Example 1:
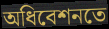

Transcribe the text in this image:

অধিবেশনতে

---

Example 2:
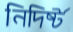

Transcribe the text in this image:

নিদিৰ্ষ্ট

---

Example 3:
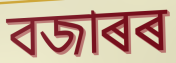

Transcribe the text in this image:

বজাৰৰ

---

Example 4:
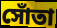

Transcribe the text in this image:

সোঁতা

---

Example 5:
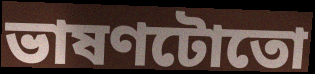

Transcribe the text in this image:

ভাষণটোতো